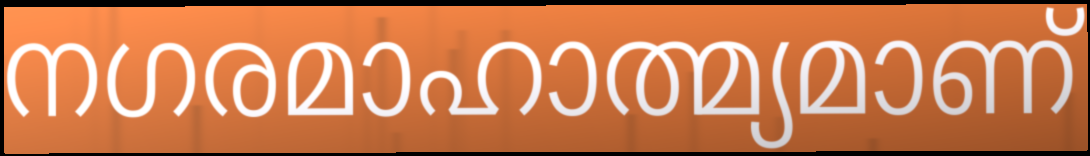
നഗരമാഹാത്മ്യമാണ്